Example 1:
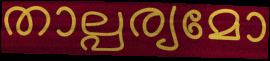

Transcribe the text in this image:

താല്പര്യമോ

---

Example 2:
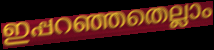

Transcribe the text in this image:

ഇപ്പറഞ്ഞതെല്ലാം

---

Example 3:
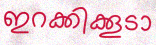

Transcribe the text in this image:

ഇറക്കിക്കൂടാ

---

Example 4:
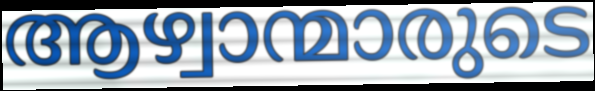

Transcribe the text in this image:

ആഴ്വാന്മാരുടെ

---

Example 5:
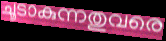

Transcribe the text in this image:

ചൂടാകുന്നതുവരെ